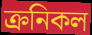
ক্রনিকল